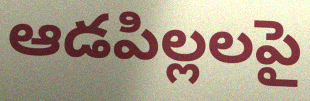
ఆడపిల్లలపై